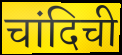
चांदिची